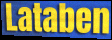
Lataben